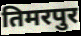
तिमरपुर